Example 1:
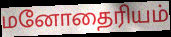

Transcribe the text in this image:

மனோதைரியம்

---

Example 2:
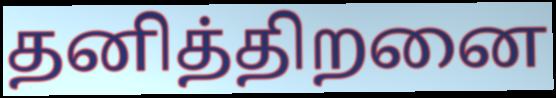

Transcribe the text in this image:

தனித்திறனை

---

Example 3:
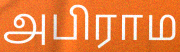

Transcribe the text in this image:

அபிராம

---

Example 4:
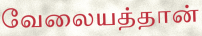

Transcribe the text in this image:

வேலையத்தான்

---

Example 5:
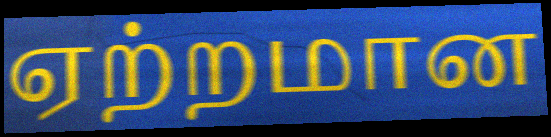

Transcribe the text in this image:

ஏற்றமான